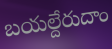
బయల్దేరుదాం